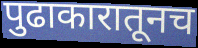
पुढाकारातूनच